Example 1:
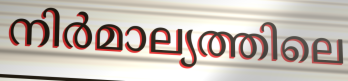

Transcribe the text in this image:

നിർമാല്യത്തിലെ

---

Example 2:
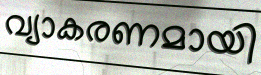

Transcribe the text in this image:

വ്യാകരണമായി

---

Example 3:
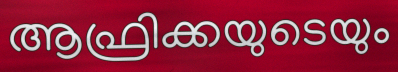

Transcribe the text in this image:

ആഫ്രിക്കയുടെയും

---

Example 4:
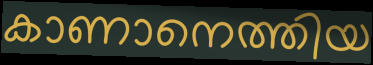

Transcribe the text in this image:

കാണാനെത്തിയ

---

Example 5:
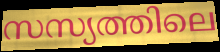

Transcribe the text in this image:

സസ്യത്തിലെ